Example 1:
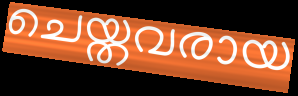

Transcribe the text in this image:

ചെയ്തവരായ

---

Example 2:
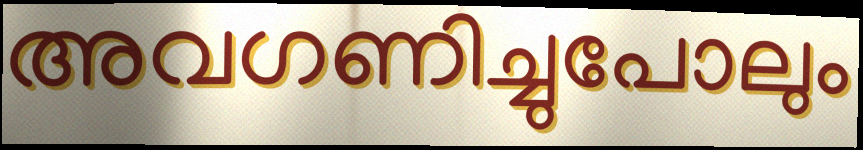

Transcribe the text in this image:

അവഗണിച്ചുപോലും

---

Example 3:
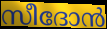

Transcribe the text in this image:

സീദോൻ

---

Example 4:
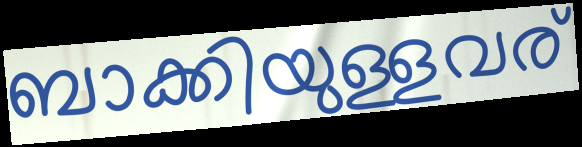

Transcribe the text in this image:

ബാക്കിയുള്ളവര്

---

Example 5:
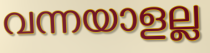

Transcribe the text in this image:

വന്നയാളല്ല